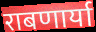
राबणार्या